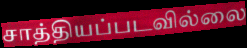
சாத்தியப்படவில்லை